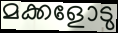
മക്കളോടു